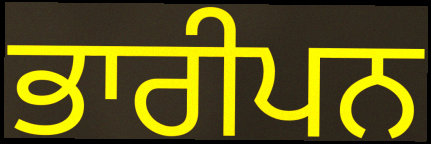
ਭਾਰੀਪਨ